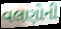
વલણોની